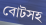
বোটসহ